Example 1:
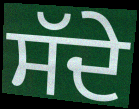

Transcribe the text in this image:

ਸੱਦੇ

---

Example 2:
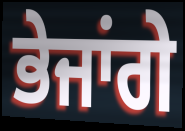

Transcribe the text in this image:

ਭੇਜਾਂਗੇ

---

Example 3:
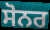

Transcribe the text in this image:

ਸੋਨਰ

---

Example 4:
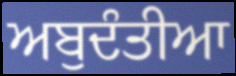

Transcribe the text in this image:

ਅਬੁਦੰਤੀਆ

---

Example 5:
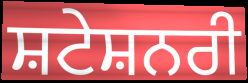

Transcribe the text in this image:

ਸ਼ਟੇਸ਼ਨਰੀ